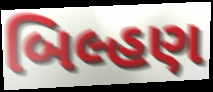
બિલ્હણ